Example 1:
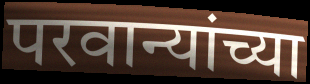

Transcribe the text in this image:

परवान्यांच्या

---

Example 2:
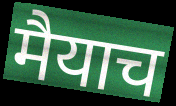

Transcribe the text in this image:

मैयाच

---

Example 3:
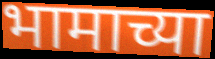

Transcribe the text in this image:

भामाच्या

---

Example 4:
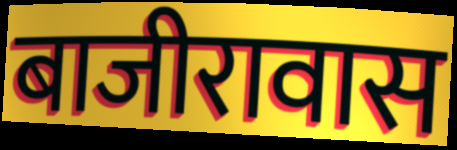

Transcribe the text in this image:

बाजीरावास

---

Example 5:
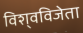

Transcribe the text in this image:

विश्वविजेता